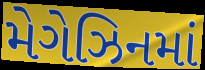
મેગેઝિનમાં